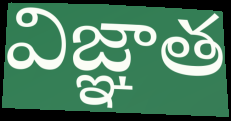
విజ్ఞాత